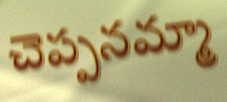
చెప్పనమ్మా